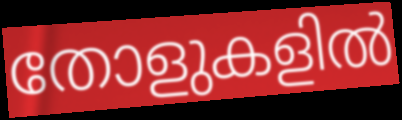
തോളുകളിൽ